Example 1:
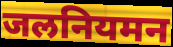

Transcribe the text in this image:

जलनियमन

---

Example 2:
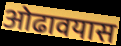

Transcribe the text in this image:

ओढावयास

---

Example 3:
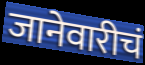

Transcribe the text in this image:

जानेवारीचं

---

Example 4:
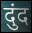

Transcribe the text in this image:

दुंद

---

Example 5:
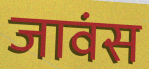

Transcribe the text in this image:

जावंस